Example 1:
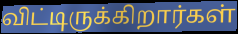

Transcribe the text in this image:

விட்டிருக்கிறார்கள்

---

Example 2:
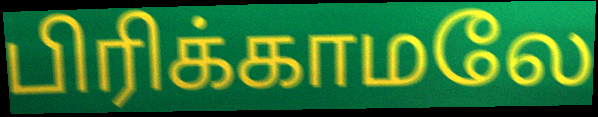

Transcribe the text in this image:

பிரிக்காமலே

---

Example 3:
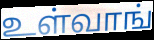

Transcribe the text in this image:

உள்வாங்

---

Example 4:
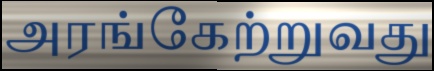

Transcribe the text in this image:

அரங்கேற்றுவது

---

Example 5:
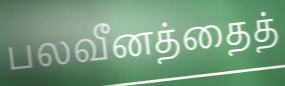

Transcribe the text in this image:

பலவீனத்தைத்